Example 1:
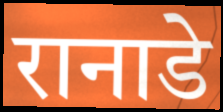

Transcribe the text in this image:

रानाडे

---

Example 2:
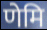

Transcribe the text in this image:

णेमि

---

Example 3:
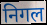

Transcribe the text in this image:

निगल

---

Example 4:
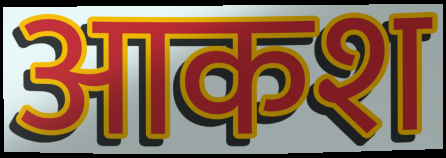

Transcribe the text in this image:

आकश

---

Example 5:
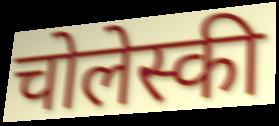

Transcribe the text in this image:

चोलेस्की